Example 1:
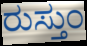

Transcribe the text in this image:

ರುಸ್ತುಂ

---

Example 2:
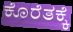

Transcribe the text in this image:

ಕೊರೆತಕ್ಕೆ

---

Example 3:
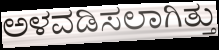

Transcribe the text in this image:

ಅಳವಡಿಸಲಾಗಿತ್ತು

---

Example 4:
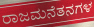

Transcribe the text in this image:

ರಾಜಮನೆತನಗಳ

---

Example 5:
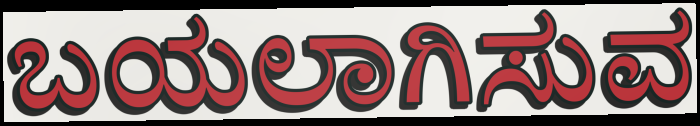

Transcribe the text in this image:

ಬಯಲಾಗಿಸುವ